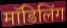
मॉडिलिंग